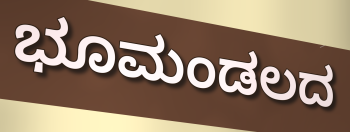
ಭೂಮಂಡಲದ